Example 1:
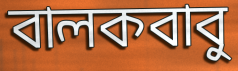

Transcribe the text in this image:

বালকবাবু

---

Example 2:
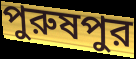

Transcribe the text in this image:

পুরুষপুর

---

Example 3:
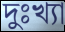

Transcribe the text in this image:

দুঃখ্যা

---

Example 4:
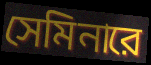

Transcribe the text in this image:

সেমিনারে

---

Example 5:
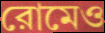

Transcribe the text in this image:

রোমেও